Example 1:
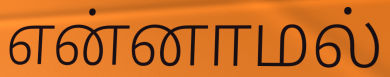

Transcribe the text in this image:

என்னாமல்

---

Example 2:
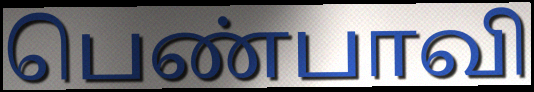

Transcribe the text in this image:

பெண்பாவி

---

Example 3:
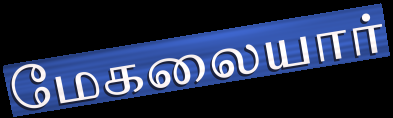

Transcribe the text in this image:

மேகலையார்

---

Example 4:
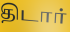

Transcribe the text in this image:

திடார்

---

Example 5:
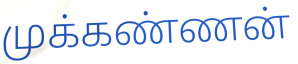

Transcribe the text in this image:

முக்கண்ணன்